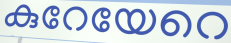
കുറേയേറെ